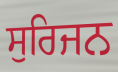
ਸੁਰਿਜਨ